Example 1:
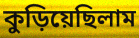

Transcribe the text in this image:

কুড়িয়েছিলাম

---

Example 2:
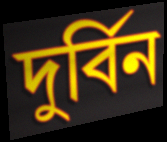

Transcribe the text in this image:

দুর্বিন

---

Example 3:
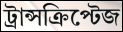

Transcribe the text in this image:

ট্রান্সক্রিপ্টেজ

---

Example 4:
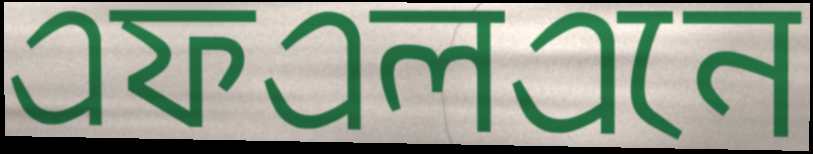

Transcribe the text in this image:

এফএলএনে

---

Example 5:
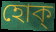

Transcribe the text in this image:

হোক্